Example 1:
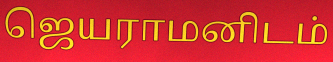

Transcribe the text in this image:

ஜெயராமனிடம்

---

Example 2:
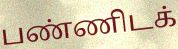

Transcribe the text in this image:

பண்ணிடக்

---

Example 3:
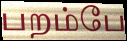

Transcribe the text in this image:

பறம்பே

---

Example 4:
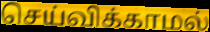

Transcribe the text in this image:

செய்விக்காமல்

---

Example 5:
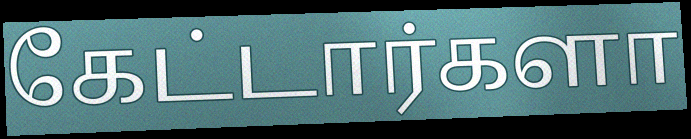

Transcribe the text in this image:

கேட்டார்களா